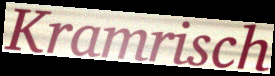
Kramrisch